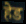
हेड